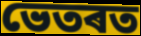
ভেতৰত